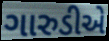
ગારુડીએ